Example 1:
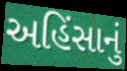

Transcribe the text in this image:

અહિંસાનું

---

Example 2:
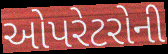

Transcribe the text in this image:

ઓપરેટરોની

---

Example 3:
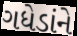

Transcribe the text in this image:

ગધેડાંને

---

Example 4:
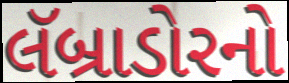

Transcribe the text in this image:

લૅબ્રાડોરનો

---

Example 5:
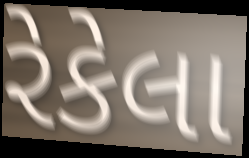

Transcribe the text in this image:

રેકેલા